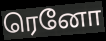
ரெனோ